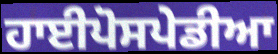
ਹਾਈਪੋਸਪੇਡੀਆ